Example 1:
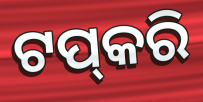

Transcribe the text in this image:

ଟପ୍‌କରି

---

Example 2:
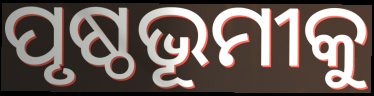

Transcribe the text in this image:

ପୃଷ୍ଠଭୂମୀକୁ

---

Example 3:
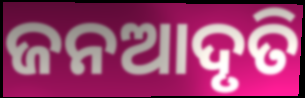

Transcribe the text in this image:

ଜନଆଦୃତି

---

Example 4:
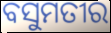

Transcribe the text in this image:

ବସୁମତୀର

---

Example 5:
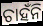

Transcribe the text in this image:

ଚାହଁନି